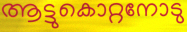
ആട്ടുകൊറ്റനോടു